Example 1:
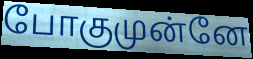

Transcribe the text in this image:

போகுமுன்னே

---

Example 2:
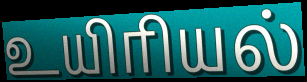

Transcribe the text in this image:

உயிரியல்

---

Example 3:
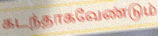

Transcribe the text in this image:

கடந்தாகவேண்டும்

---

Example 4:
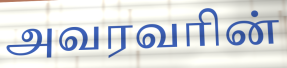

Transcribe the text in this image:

அவரவரின்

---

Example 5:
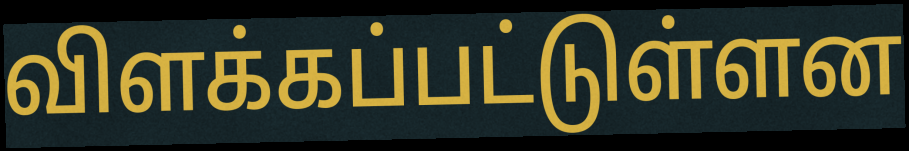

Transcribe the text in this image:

விளக்கப்பட்டுள்ளன